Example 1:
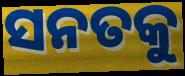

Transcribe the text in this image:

ସନତକୁ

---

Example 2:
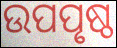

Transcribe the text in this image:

ଉପପୃଷ୍ଠ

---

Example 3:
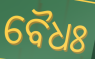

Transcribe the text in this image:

ବୈଧଃ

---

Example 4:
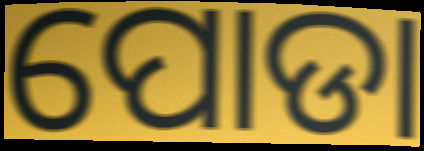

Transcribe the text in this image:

ପୋଡା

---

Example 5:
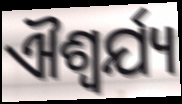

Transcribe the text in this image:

ଐଶ୍ଵର୍ଯ୍ୟ